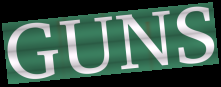
GUNS